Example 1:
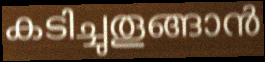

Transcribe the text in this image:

കടിച്ചുതൂങ്ങാൻ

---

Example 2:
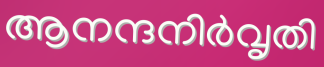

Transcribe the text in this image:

ആനന്ദനിർവൃതി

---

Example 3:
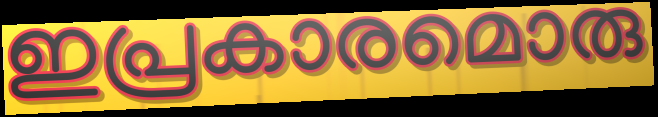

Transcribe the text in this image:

ഇപ്രകാരമൊരു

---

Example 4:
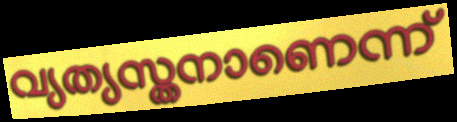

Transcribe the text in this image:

വ്യത്യസ്തനാണെന്ന്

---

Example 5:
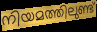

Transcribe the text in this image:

നിയമത്തിലുണ്ട്